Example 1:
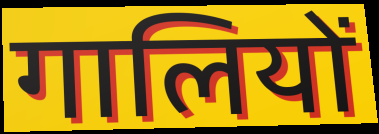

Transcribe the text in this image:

गालियों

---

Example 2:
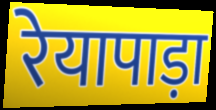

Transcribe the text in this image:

रेयापाड़ा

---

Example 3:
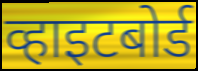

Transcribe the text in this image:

व्हाइटबोर्ड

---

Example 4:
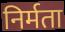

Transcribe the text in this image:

निर्मता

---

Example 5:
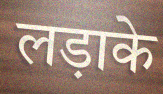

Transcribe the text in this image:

लड़ाके